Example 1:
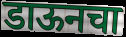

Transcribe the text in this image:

डाऊनचा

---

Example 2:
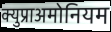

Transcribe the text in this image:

क्युप्राअमोनियम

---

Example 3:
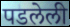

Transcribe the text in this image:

पडलेली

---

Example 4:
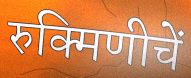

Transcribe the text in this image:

रुक्मिणीचें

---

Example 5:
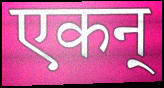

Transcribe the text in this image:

एकन्